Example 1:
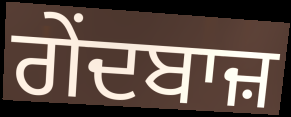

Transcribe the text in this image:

ਗੇਂਦਬਾਜ਼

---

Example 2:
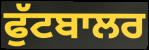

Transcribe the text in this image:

ਫੁੱਟਬਾਲਰ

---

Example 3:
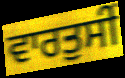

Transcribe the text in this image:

ਵਾਰਤੁਸੀਂ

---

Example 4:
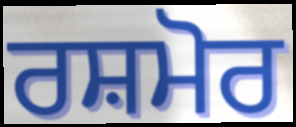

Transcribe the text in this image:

ਰਸ਼ਮੋਰ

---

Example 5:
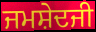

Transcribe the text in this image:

ਜਮਸ਼ੇਦਜੀ